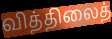
வித்திலைத்